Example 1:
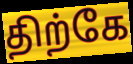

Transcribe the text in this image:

திற்கே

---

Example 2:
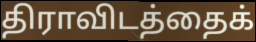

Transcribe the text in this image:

திராவிடத்தைக்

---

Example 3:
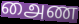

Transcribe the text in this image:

அைண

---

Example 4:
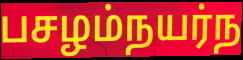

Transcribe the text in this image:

பசழம்நயர்ந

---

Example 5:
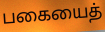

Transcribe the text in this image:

பகையைத்